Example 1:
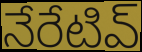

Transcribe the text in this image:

నేరేటివ్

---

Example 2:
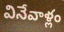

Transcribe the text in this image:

వినేవాళ్లం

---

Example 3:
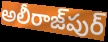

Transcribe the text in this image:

అలీరాజ్‌పుర్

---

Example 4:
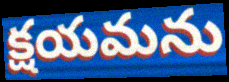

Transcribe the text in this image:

క్షయమను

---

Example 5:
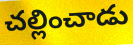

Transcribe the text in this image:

చల్లించాడు